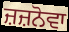
ਜ਼ਜ਼ਨੋਵਾ